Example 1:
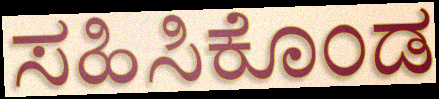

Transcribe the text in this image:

ಸಹಿಸಿಕೊಂಡ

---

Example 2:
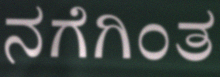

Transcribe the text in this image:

ನಗೆಗಿಂತ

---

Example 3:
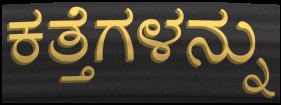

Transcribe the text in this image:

ಕತ್ತೆಗಳನ್ನು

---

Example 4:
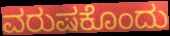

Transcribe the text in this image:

ವರುಷಕೊಂದು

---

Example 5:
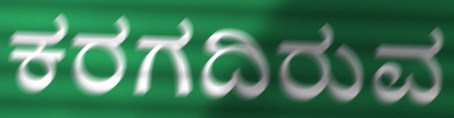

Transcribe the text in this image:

ಕರಗದಿರುವ